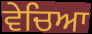
ਵੇਚਿਆ